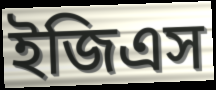
ইজিএস